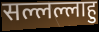
सल्लल्लाहु